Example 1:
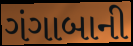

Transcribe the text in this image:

ગંગાબાની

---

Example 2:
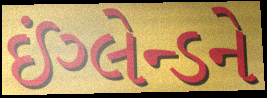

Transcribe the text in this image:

ઈંગ્લેન્ડને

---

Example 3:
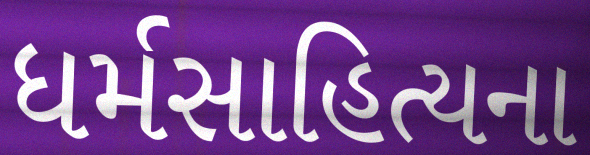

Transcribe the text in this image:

ધર્મસાહિત્યના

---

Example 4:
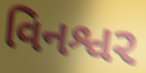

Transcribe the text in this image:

વિનશ્વર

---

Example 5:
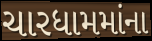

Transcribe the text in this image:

ચારધામમાંના